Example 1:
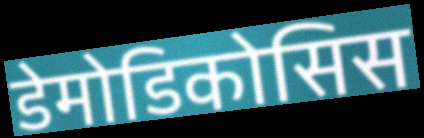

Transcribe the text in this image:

डेमोडिकोसिस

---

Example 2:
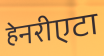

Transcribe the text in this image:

हेनरीएटा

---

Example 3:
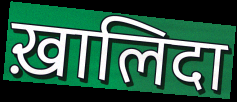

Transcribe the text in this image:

ख़ालिदा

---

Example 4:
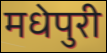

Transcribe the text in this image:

मधेपुरी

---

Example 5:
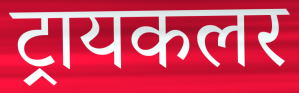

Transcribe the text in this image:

ट्रायकलर